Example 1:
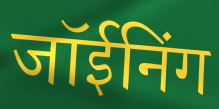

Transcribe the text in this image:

जॉईनिंग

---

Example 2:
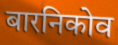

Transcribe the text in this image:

बारनिकोव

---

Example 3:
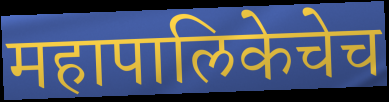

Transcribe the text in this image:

महापालिकेचेच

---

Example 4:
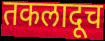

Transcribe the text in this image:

तकलादूच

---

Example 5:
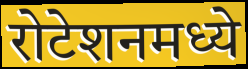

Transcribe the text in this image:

रोटेशनमध्ये